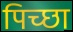
पिच्छा